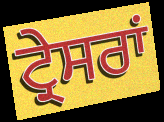
ਟ੍ਰੇਸਰਾਂ